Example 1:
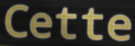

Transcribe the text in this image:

Cette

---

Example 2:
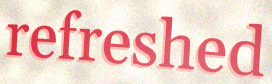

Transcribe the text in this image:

refreshed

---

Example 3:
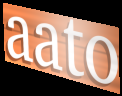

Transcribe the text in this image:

aato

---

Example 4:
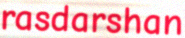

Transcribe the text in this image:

rasdarshan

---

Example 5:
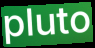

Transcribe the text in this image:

pluto